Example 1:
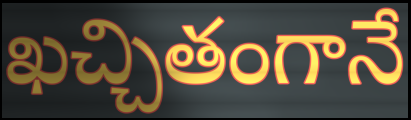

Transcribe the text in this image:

ఖచ్చితంగానే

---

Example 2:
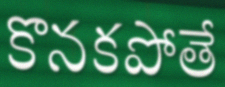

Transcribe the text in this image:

కొనకపోతే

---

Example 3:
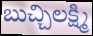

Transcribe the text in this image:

బుచ్చిలక్ష్మి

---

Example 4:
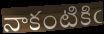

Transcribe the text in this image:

నాకంటికిఁ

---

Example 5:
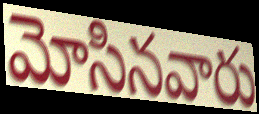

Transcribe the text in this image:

మోసినవారు